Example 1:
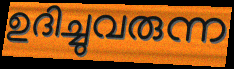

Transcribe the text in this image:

ഉദിച്ചുവരുന്ന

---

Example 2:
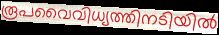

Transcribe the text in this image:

രൂപവൈവിധ്യത്തിനടിയിൽ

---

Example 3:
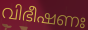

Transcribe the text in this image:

വിഭീഷണഃ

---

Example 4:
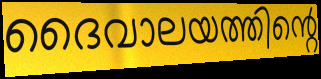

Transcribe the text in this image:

ദൈവാലയത്തിന്റെ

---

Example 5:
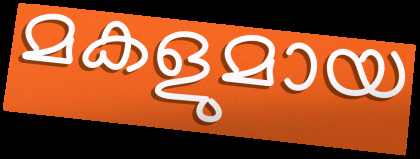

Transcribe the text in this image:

മകളുമായ